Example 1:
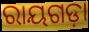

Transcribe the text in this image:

ରାୟଗଡ଼ା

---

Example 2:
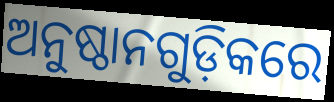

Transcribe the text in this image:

ଅନୁଷ୍ଠାନଗୁଡ଼ିକରେ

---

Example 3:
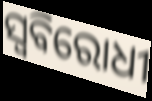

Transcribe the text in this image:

ସ୍ୱବିରୋଧୀ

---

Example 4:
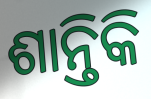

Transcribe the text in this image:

ଶାନ୍ତିକି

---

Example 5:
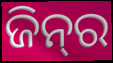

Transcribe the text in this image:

ଜିନ୍‌ର